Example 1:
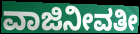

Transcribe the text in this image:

ವಾಜಿನೀವತೀ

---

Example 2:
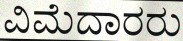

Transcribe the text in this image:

ವಿಮೆದಾರರು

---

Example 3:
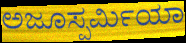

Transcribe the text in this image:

ಅಜೂಸ್ಪರ್ಮಿಯಾ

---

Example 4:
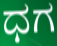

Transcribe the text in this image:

ಧಗ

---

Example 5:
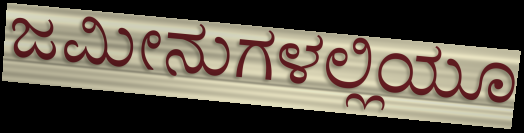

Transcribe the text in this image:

ಜಮೀನುಗಳಲ್ಲಿಯೂ